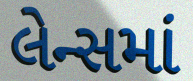
લેન્સમાં